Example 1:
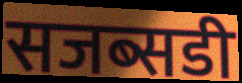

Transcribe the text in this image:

सजब्सडी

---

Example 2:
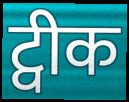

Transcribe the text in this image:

ट्वीक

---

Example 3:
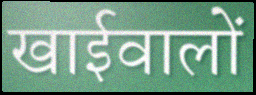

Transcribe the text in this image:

खाईवालों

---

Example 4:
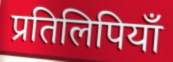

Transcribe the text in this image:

प्रतिलिपियाँ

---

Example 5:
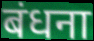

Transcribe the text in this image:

बंधना